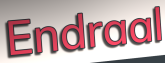
Endraal